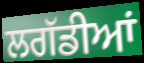
ਲਗੱਡੀਆਂ